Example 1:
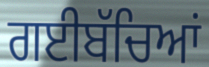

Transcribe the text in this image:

ਗਈਬੱਚਿਆਂ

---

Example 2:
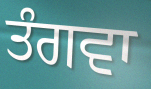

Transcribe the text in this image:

ਤੰਗਵਾ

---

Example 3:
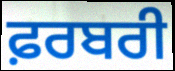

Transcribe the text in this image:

ਫ਼ਰਬਰੀ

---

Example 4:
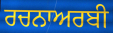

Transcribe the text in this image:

ਰਚਨਾਅਰਬੀ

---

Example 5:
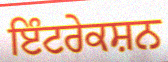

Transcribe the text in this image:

ਇੰਟਰੇਕਸ਼ਨ